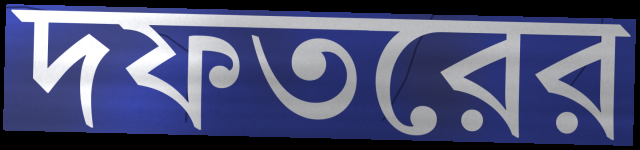
দফতরের